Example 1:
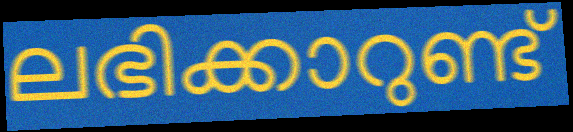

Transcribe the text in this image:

ലഭിക്കാറുണ്ട്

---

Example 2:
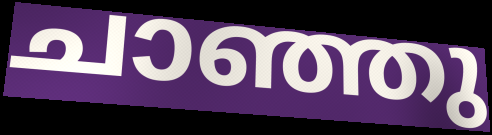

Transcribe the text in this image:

ചാഞ്ഞു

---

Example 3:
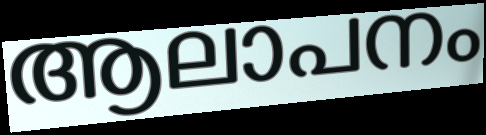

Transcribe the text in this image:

ആലാപനം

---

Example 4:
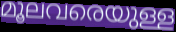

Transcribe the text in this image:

മൂലവരെയുള്ള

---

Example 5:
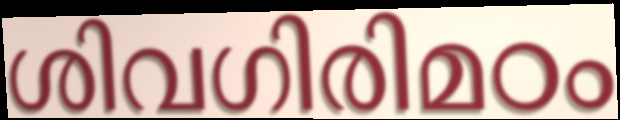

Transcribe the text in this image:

ശിവഗിരിമഠം